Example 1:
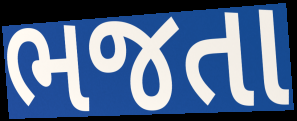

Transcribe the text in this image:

ભજતા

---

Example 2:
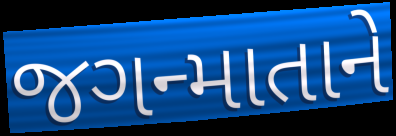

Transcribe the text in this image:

જગન્માતાને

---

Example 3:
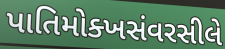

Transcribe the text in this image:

પાતિમોક્ખસંવરસીલે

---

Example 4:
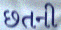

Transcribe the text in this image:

છતની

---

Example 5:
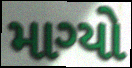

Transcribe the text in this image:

માગ્યો